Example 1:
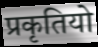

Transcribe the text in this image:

प्रकृतियो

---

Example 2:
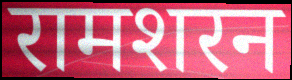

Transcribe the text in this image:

रामशरन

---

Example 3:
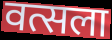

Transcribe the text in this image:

वत्सला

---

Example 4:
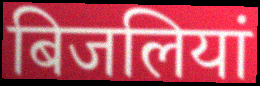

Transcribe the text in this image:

बिजलियां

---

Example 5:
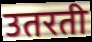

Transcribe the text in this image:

उतरती